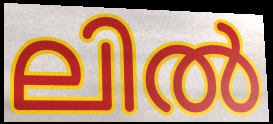
ലിൽ